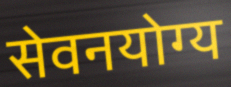
सेवनयोग्य